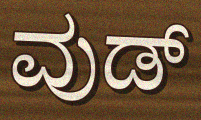
ವುಡ್